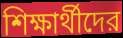
শিক্ষার্থীদের